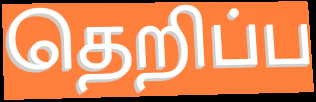
தெறிப்ப